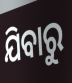
ଯିବାରୁ